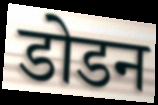
डोडन